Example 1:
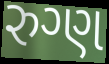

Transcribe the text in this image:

રુગ્ણ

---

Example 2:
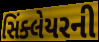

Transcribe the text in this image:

સિંક્લેયરની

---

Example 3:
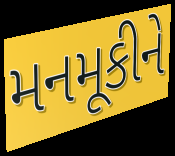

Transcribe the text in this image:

મનમૂકીને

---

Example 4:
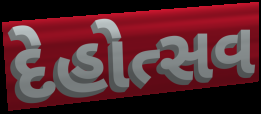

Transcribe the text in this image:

દેહોત્સવ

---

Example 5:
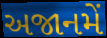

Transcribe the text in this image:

અજાનમેં